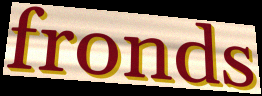
fronds